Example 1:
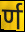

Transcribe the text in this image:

र्ण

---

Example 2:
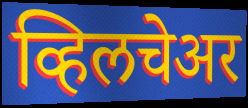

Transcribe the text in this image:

व्हिलचेअर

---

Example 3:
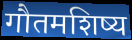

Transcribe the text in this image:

गौतमशिष्य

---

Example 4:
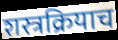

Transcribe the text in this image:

शस्त्रक्रियाच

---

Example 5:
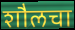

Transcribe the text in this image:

शौलचा